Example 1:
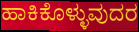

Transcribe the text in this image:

ಹಾಕಿಕೊಳ್ಳುವುದರ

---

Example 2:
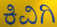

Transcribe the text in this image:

ಕಿವಿಗಿ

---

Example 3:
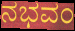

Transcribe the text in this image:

ನಭವಂ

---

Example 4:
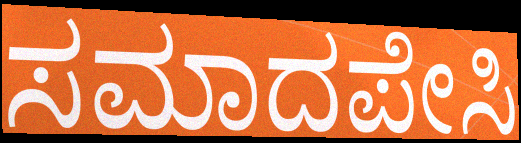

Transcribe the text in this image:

ಸಮಾದಪೇಸಿ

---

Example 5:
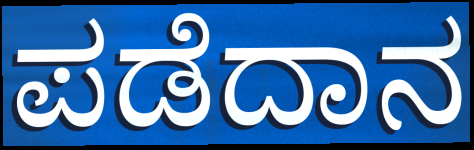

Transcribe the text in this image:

ಪಡೆದಾನ